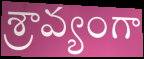
శ్రావ్యంగా